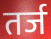
तर्ज